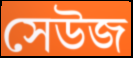
সেউজ